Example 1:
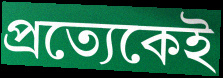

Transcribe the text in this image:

প্ৰত্যেকেই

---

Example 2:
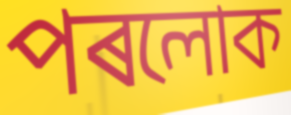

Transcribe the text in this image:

পৰলোক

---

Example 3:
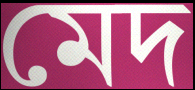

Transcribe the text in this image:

মেদ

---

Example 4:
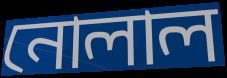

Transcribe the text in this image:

নোলাল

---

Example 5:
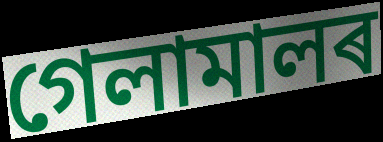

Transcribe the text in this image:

গেলামালৰ